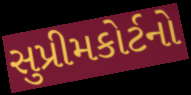
સુપ્રીમકોર્ટનો